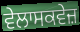
ਵੇਲਾਸਕਵੇਜ਼